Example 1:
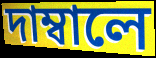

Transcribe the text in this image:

দাম্বালে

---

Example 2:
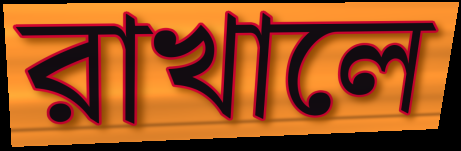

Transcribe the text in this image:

রাখালে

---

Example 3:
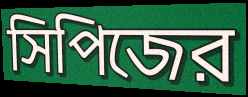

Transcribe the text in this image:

সিপিজের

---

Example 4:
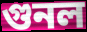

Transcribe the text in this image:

গুনল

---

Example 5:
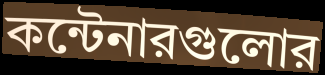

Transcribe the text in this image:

কন্টেনারগুলোর